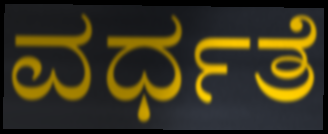
ವರ್ಧತೆ